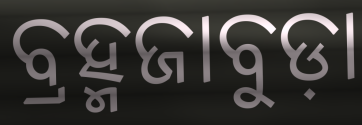
ବ୍ରହ୍ମଜାବୁଡ଼ା